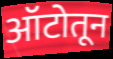
ऑटोतून